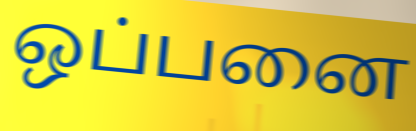
ஒப்பனை